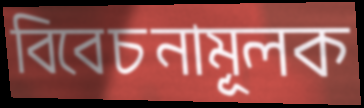
বিবেচনামূলক